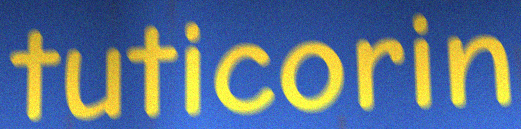
tuticorin